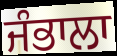
ਜੰਭਾਲਾ